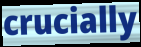
crucially